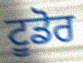
ਟੂਡੋਰ